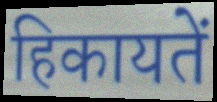
हिकायतें